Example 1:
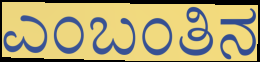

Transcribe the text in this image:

ಎಂಬಂತಿನ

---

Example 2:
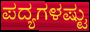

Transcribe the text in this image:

ಪದ್ಯಗಳಷ್ಟು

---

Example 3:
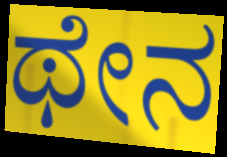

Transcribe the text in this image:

ಥೇನ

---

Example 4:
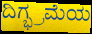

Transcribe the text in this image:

ದಿಗ್ಭ್ರಮೆಯ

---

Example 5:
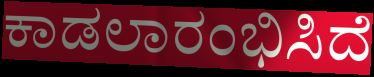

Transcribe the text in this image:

ಕಾಡಲಾರಂಭಿಸಿದೆ